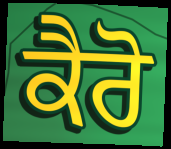
ਕੈਰੋ